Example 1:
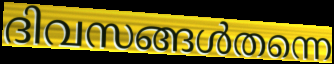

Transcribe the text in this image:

ദിവസങ്ങൾതന്നെ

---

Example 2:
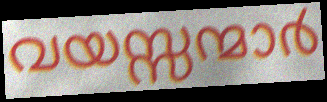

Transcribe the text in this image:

വയസ്സന്മാർ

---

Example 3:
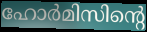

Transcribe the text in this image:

ഹോർമിസിന്റെ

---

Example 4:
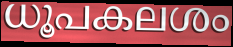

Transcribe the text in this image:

ധൂപകലശം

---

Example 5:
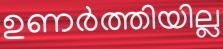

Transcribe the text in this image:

ഉണർത്തിയില്ല